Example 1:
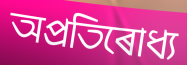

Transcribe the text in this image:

অপ্ৰতিৰোধ্য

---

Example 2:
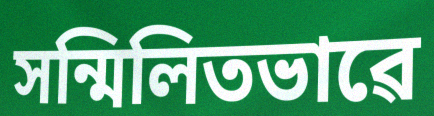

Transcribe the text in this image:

সন্মিলিতভাৱে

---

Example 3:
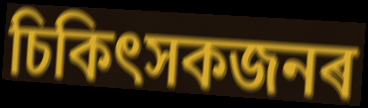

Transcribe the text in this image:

চিকিৎসকজনৰ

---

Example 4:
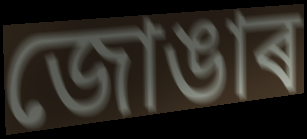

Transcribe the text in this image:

জোঙাৰ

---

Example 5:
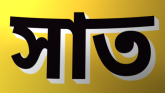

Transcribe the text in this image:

সাত